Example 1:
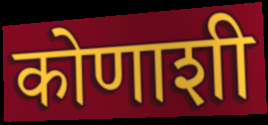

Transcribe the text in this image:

कोणाशी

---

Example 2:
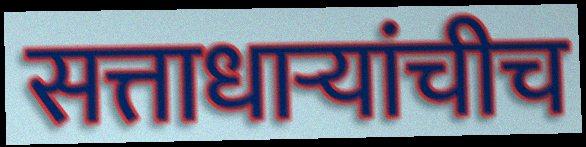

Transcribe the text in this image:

सत्ताधाऱ्यांचीच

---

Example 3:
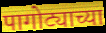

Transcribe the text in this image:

पागोट्याच्या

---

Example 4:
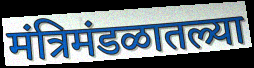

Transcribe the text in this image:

मंत्रिमंडळातल्या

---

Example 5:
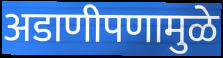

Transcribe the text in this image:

अडाणीपणामुळे